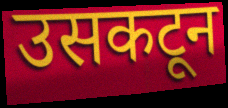
उसकटून